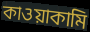
কাওয়াকামি